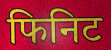
फिनिट